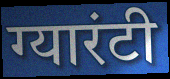
ग्‍यारंटी